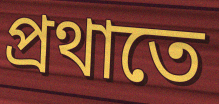
প্ৰথাতে